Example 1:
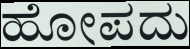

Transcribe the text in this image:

ಹೋಪದು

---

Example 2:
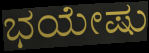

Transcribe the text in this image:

ಭಯೇಷು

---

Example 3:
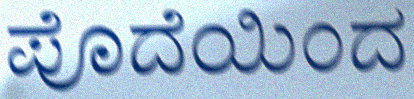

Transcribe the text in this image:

ಪೊದೆಯಿಂದ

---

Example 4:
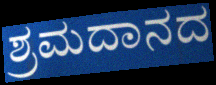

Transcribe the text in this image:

ಶ್ರಮದಾನದ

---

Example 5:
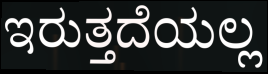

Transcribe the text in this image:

ಇರುತ್ತದೆಯಲ್ಲ